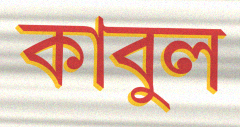
কাবুল